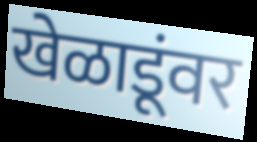
खेळाडूंवर